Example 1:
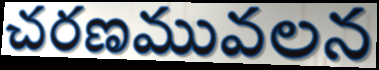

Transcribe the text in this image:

చరణమువలన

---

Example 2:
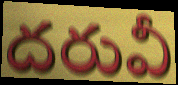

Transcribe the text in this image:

దరువీ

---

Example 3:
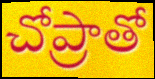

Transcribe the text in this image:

చోప్రాతో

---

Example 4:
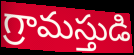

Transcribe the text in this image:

గ్రామస్తుడి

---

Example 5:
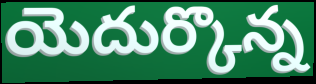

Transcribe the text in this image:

యెదుర్కొన్న